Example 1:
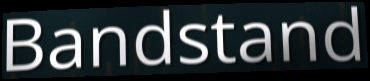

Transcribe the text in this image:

Bandstand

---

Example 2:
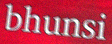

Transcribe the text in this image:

bhunsi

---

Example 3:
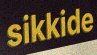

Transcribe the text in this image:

sikkide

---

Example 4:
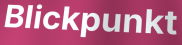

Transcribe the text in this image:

Blickpunkt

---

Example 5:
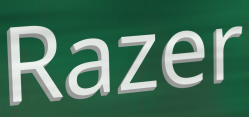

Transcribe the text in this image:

Razer